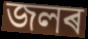
জলৰ